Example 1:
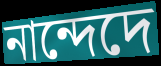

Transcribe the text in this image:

নান্দেদে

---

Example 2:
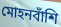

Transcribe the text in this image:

মোহনবাঁশি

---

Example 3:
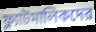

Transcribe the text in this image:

ফ্ল্যাটমালিকদের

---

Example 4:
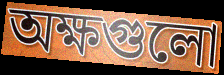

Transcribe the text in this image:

অক্ষগুলো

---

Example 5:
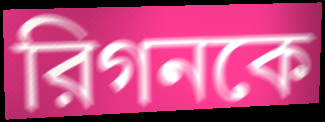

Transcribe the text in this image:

রিগনকে